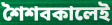
শৈশবকালেই